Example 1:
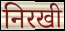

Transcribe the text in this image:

निरखी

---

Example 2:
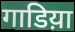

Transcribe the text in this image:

गाडिय़ा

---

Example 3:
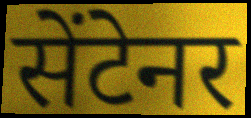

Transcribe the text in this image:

सेंटेनर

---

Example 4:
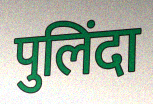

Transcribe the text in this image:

पुलिंदा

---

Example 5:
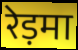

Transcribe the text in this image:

रेड़मा